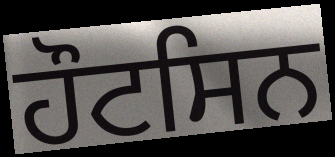
ਹੌਟਸਿਨ